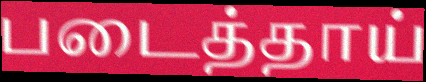
படைத்தாய்